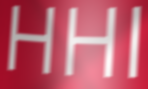
HHI